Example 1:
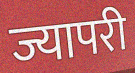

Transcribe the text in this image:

ज्यापरी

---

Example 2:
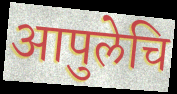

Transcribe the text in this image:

आपुलेचि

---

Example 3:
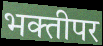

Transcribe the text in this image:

भक्तीपर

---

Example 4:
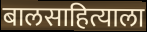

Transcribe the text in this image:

बालसाहित्याला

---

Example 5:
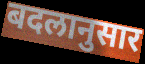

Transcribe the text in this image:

बदलानुसार